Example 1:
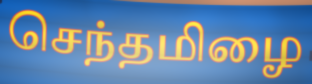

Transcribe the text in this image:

செந்தமிழை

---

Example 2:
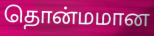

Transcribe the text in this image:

தொன்மமான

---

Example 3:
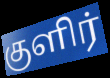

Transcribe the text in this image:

குளிர்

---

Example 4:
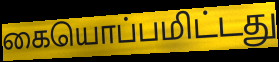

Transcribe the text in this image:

கையொப்பமிட்டது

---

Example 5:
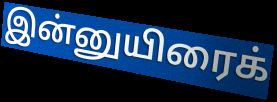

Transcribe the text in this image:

இன்னுயிரைக்